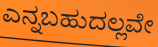
ಎನ್ನಬಹುದಲ್ಲವೇ